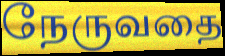
நேருவதை